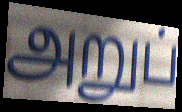
அறுப்